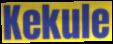
Kekule